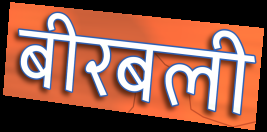
बीरबली